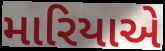
મારિયાએ